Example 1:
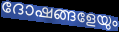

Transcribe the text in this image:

ദോഷങ്ങളേയും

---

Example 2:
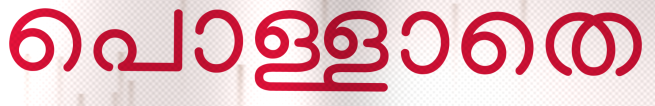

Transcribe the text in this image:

പൊള്ളാതെ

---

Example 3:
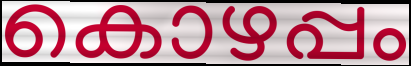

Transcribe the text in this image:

കൊഴപ്പം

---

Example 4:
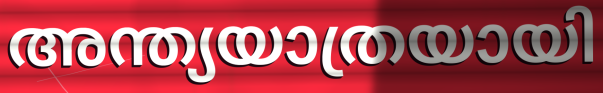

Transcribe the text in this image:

അന്ത്യയാത്രയായി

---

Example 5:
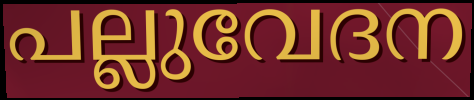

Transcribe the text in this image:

പല്ലുവേദന